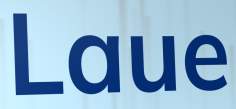
Laue